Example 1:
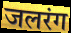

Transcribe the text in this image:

जलरंग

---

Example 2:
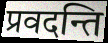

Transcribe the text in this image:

प्रवदन्ति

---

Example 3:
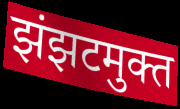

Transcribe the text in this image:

झंझटमुक्त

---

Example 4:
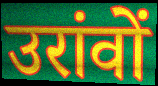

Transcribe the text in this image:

उरांवों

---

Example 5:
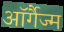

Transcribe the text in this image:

ऑर्गैज्म